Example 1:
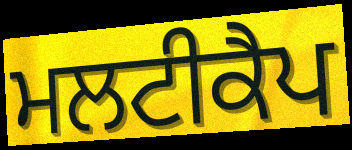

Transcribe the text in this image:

ਮਲਟੀਕੈਪ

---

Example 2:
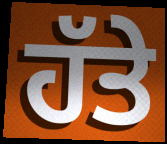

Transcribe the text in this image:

ਹੱਤੇ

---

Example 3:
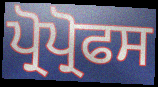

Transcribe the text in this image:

ਪ੍ਰੋਪ੍ਰੋਫਸ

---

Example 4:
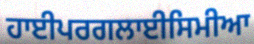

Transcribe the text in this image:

ਹਾਈਪਰਗਲਾਈਸਿਮੀਆ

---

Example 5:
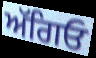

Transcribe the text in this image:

ਅੱਗਿਓ